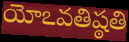
యోఽవతిష్ఠతి